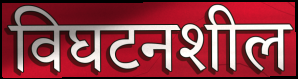
विघटनशील